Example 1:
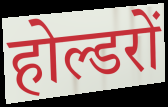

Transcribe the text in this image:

होल्‍डरों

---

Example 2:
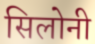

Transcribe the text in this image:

सिलोनी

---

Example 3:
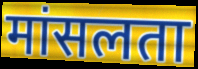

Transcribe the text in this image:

मांसलता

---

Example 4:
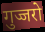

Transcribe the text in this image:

गुज्जरो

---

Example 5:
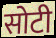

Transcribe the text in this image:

सोटी